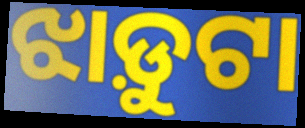
ଝାଡ଼ୁଟା